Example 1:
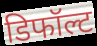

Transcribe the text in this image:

डिफॉल्ट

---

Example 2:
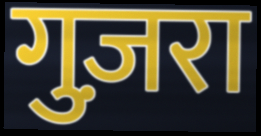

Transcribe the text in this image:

गुज़रा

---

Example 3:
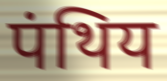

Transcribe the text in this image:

पंथिय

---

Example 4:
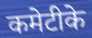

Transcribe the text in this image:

कमेटीके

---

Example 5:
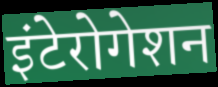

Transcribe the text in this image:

इंटेरोगेशन